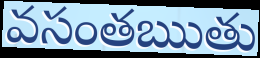
వసంతఋతు